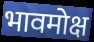
भावमोक्ष